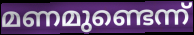
മണമുണ്ടെന്ന്